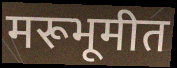
मरूभूमीत